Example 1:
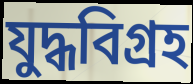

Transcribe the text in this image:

যুদ্ধবিগ্রহ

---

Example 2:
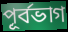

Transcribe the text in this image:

পূর্বভাগ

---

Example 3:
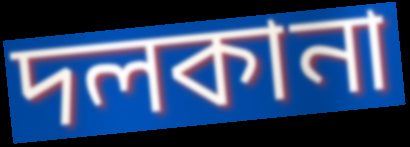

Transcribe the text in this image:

দলকানা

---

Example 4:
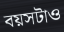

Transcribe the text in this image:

বয়সটাও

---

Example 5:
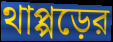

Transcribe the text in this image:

থাপ্পড়ের